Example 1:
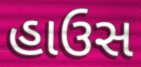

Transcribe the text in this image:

હાઉસ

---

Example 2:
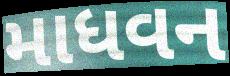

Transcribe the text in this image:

માધવન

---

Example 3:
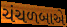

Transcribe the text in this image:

ચંચળબાએ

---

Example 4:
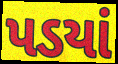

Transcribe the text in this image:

પડયાં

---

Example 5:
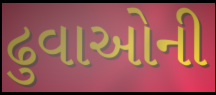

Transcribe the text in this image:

ઢુવાઓની